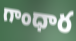
గాంధార